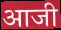
आजी